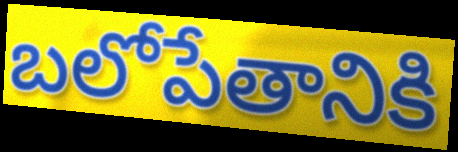
బలోపేతానికి